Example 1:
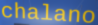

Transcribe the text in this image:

chalano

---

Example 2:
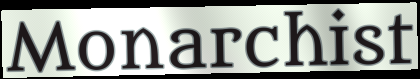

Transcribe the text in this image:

Monarchist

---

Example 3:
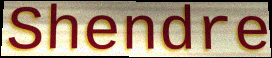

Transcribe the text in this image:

Shendre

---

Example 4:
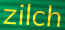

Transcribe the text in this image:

zilch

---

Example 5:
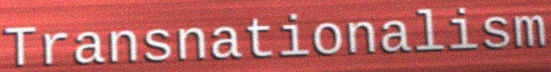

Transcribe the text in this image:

Transnationalism